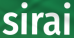
sirai